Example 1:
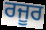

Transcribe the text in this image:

ਰਜੂਰ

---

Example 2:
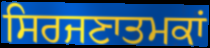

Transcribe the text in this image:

ਸਿਰਜਣਾਤਮਕਾਂ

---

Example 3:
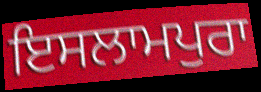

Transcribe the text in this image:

ਇਸਲਾਮਪੁਰਾ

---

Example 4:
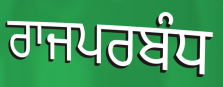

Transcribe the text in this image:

ਰਾਜਪਰਬੰਧ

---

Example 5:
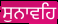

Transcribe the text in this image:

ਸੁਨਾਵਹਿ